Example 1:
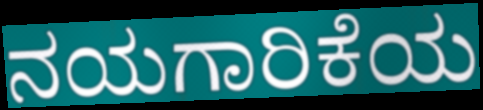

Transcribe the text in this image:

ನಯಗಾರಿಕೆಯ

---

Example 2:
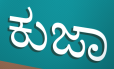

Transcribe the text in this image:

ಕುಜಾ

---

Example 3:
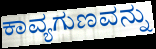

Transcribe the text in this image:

ಕಾವ್ಯಗುಣವನ್ನು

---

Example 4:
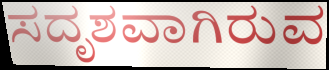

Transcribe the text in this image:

ಸದೃಶವಾಗಿರುವ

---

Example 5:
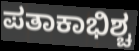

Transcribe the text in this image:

ಪತಾಕಾಭಿಶ್ಚ